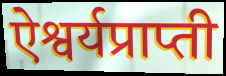
ऐश्वर्यप्राप्ती